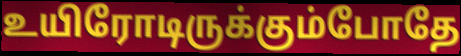
உயிரோடிருக்கும்போதே